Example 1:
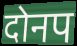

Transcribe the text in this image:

दोनप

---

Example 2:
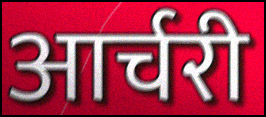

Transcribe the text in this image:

आर्चरी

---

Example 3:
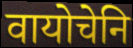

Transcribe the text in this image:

वायोचेनि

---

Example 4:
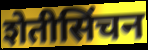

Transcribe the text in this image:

शेतीसिंचन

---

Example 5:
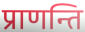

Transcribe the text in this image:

प्राणन्ति